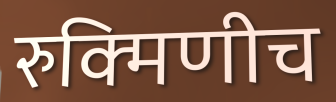
रुक्मिणीच